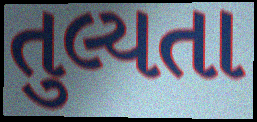
તુલ્યતા